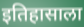
इतिहासाला